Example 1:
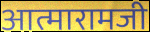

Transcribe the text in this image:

आत्मारामजी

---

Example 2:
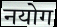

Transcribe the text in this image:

नयोग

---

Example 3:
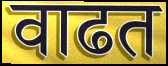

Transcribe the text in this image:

वाढत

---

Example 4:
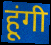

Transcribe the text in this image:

हूंगी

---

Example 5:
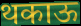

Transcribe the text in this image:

थकाऊ